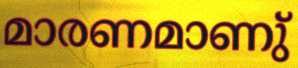
മാരണമാണു്